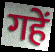
गहें